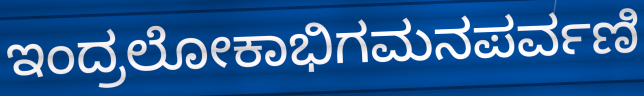
ಇಂದ್ರಲೋಕಾಭಿಗಮನಪರ್ವಣಿ